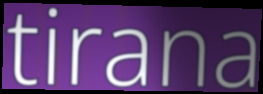
tirana